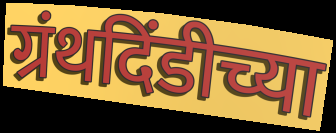
ग्रंथदिंडीच्या